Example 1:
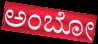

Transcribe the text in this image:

ಅಂಬೋ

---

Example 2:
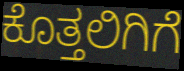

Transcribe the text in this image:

ಕೊತ್ತಲಿಗಿಗೆ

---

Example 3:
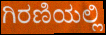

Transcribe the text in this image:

ಗಿರಣಿಯಲ್ಲಿ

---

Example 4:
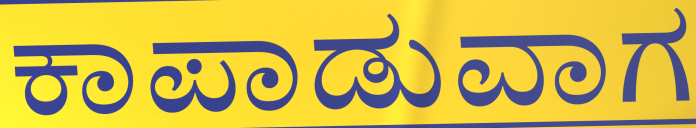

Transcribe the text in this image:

ಕಾಪಾಡುವಾಗ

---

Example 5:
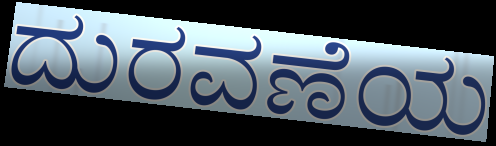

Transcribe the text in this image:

ದುರವಣೆಯ